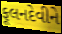
ફૂલનદેવીને